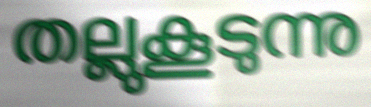
തല്ലുകൂടുന്നു